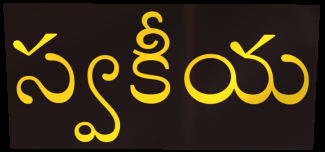
స్వకీయ